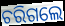
ଚରିଗଲେ